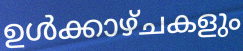
ഉൾക്കാഴ്ചകളും